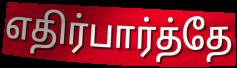
எதிர்பார்த்தே